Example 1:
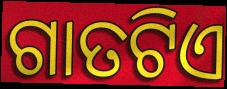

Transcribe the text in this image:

ଗାତଟିଏ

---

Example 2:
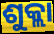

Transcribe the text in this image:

ଶୁକ୍ଲା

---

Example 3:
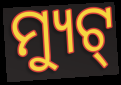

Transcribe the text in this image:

ମ୍ୟୁଟ୍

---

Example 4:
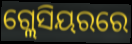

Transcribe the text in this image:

ଗ୍ଲେସିୟରରେ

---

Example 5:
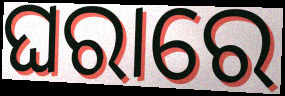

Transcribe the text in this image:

ଘରାରେ